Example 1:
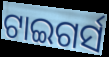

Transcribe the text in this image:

ଟାଇଗର୍ସ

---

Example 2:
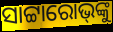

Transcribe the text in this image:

ସାଟ୍ଟାରୋଭ୍‌ଙ୍କୁ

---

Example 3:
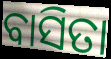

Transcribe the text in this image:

ବାସିତା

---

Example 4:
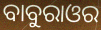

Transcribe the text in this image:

ବାବୁରାଓର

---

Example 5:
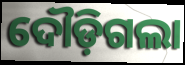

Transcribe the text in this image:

ଦୌଡ଼ିଗଲା